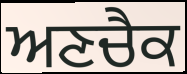
ਅਣਚੈਕ